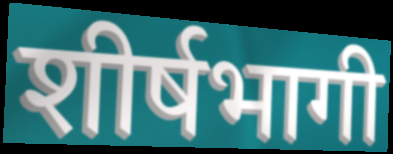
शीर्षभागी